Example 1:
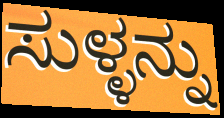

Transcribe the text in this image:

ಸುಳ್ಳನ್ನು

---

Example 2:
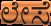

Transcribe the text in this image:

ಲೇಸೆ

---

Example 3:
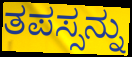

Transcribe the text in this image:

ತಪಸ್ಸನ್ನು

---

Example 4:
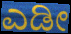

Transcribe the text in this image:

ಎಡೀ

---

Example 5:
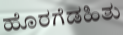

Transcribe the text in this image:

ಹೊರಗೆಡಹಿತು